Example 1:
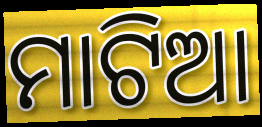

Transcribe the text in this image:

ମାଟିଆ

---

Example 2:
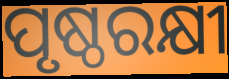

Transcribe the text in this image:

ପୃଷ୍ଠରକ୍ଷୀ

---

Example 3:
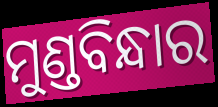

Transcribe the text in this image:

ମୁଣ୍ଡବିନ୍ଧାର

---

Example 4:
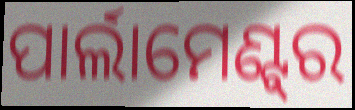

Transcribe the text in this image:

ପାର୍ଲାମେଣ୍ଟ୍‌ର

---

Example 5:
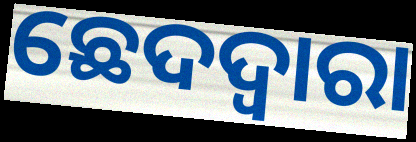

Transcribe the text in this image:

ଛେଦଦ୍ୱାରା